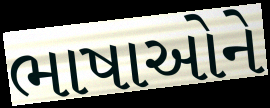
ભાષાઓને